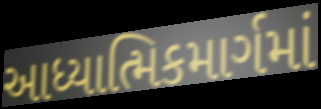
આધ્યાત્મિકમાર્ગમાં